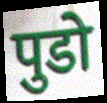
पुडो